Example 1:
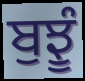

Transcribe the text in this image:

ਬੁਝੂੰ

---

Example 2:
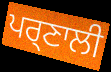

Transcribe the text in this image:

ਪਰ੍ਣਾਲੀ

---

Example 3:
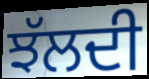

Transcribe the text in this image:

ਝੱਲਦੀ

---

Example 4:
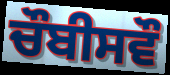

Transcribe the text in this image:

ਚੌਬੀਸਵੌ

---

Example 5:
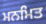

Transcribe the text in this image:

ਮਨਮਿਤ